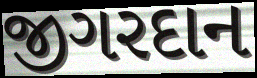
જીગરદાન